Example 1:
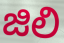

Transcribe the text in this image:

జిలి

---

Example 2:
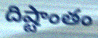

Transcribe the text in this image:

దిష్టాంతం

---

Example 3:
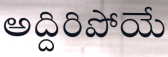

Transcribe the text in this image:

అద్దిరిపోయే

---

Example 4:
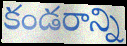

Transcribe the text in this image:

కండరాన్ని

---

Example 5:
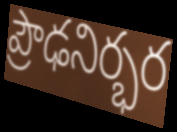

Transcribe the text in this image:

ప్రౌఢనిర్భర